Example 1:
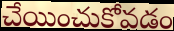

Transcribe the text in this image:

చేయించుకోవడం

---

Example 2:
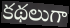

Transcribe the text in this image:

కథలుగా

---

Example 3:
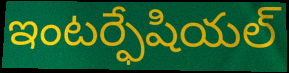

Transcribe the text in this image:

ఇంటర్ఫేషియల్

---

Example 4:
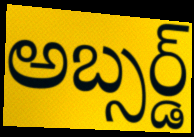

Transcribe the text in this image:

అబ్సర్డ్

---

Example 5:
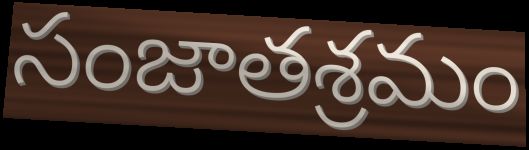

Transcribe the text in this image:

సంజాతశ్రమం